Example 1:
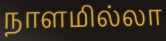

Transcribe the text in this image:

நாளமில்லா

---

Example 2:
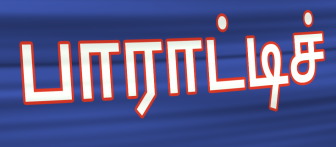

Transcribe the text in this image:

பாராட்டிச்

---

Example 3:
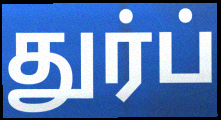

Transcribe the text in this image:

துர்ப்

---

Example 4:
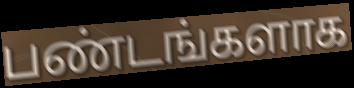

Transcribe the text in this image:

பண்டங்களாக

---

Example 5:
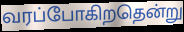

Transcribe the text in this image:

வரப்போகிறதென்று